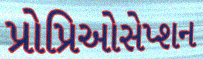
પ્રોપ્રિઓસેપ્શન